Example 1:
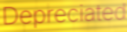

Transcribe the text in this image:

Depreciated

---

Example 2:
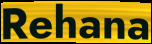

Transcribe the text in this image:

Rehana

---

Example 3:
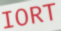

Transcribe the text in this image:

IORT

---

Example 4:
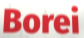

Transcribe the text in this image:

Borei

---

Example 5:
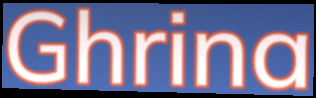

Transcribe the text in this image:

Ghrina